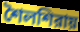
শৈলশিরায়